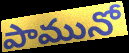
పామునో